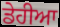
ਡੇਹੀਆ